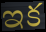
ఇక